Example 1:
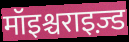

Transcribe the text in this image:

मॉइश्चराइज़्ड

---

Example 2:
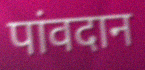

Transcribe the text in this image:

पांवदान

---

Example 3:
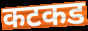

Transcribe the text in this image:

कटकड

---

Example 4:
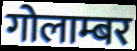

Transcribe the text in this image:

गोलाम्बर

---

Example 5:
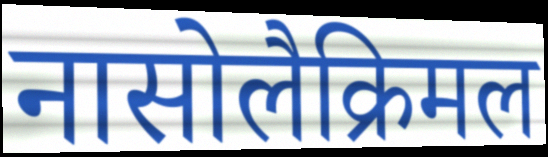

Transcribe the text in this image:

नासोलैक्रिमल